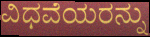
ವಿಧವೆಯರನ್ನು